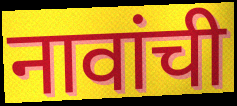
नावांची